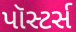
પૉસ્ટર્સ